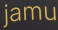
jamu